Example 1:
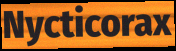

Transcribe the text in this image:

Nycticorax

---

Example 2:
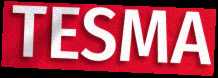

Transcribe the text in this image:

TESMA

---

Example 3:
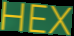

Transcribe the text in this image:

HEX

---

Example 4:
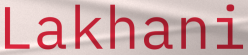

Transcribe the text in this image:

Lakhani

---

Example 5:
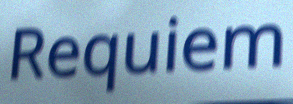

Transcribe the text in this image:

Requiem